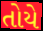
તોયે